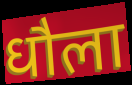
धौला